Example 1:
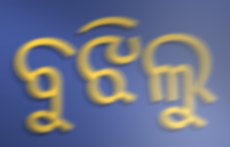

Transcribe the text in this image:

ବୁଝିଲୁ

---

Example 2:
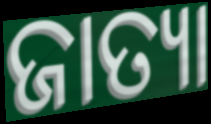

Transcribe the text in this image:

ଜାତ୍ୟା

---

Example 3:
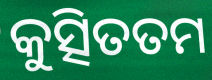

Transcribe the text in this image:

କୁତ୍ସିତତମ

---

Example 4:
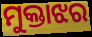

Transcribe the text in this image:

ମୁକ୍ତାଝର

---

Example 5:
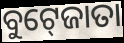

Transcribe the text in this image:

ବୁଟ୍‍ଜୋତା